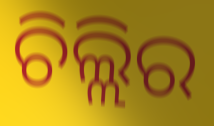
ଚିଲ୍ଲିର